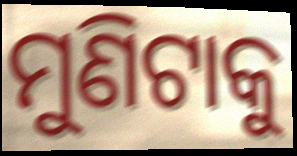
ମୁଣିଟାକୁ